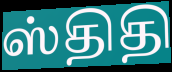
ஸ்திதி